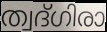
ത്വദ്ഗിരാ